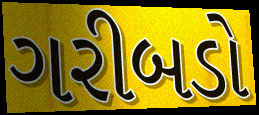
ગરીબડો